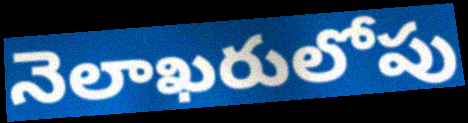
నెలాఖరులోపు